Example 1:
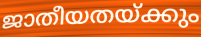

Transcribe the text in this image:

ജാതീയതയ്ക്കും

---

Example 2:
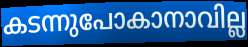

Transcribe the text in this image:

കടന്നുപോകാനാവില്ല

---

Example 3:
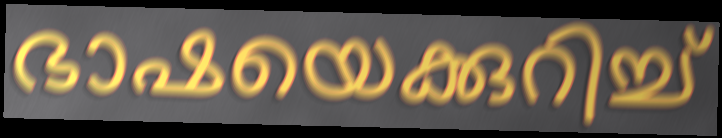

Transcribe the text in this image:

ഭാഷയെക്കുറിച്ച്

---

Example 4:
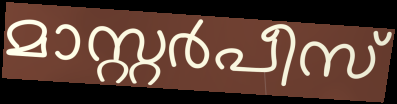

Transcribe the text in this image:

മാസ്റ്റർപീസ്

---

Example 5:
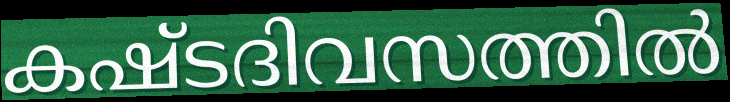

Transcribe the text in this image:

കഷ്ടദിവസത്തിൽ